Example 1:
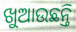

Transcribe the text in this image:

ଖୁଆଉଛନ୍ତି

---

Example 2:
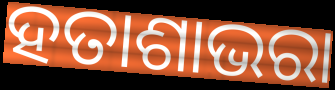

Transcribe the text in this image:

ହତାଶାଭରା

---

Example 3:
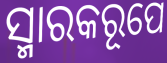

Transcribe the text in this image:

ସ୍ମାରକରୂପେ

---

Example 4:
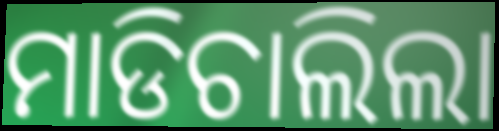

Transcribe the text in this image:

ମାଡିଚାଲିଲା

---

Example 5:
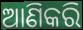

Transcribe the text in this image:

ଆଣିକରି